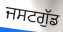
ਜਸਟਗੁੱਡ